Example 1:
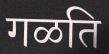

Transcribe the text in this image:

गळति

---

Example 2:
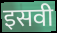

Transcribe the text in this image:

इसवी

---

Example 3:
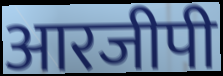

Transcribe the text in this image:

आरजीपी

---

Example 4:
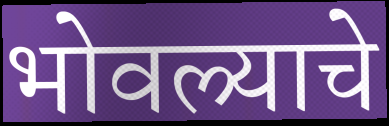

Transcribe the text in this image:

भोवल्याचे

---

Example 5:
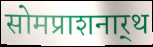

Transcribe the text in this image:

सोमप्राशनार्थ